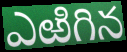
ఎఱిగిన